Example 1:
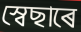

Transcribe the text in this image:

স্বেছাৰে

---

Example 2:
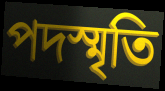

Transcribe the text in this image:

পদস্মৃতি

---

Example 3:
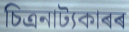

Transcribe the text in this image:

চিত্ৰনাট্যকাৰৰ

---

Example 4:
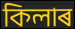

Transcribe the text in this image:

কিলাৰ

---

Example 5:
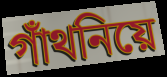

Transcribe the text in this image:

গাঁথনিয়ে